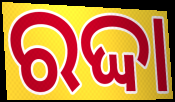
ରଦ୍ଦା